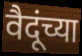
वैदूंच्या